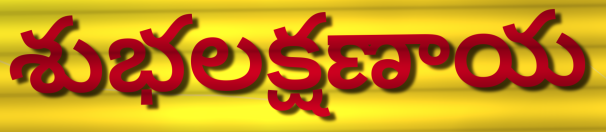
శుభలక్షణాయ